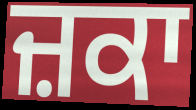
ਜ਼ਕਾ